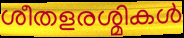
ശീതളരശ്മികൾ